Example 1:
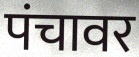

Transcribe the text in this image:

पंचावर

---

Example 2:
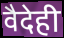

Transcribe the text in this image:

वैदेही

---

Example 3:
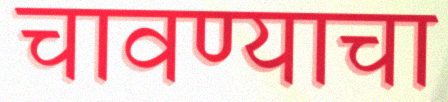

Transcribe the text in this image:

चावण्याचा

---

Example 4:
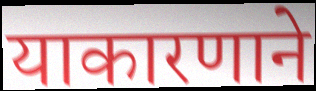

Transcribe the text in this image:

याकारणाने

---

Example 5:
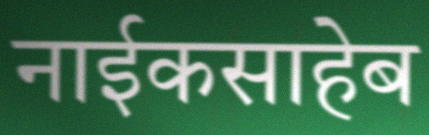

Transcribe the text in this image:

नाईकसाहेब